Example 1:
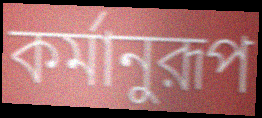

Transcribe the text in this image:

কর্মানুরূপ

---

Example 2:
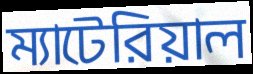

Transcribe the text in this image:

ম্যাটেরিয়াল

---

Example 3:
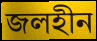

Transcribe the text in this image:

জলহীন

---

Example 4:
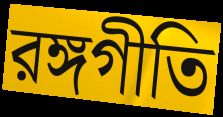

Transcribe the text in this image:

রঙ্গগীতি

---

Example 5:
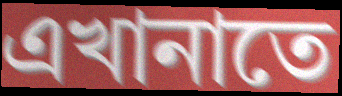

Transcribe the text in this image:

এখানাতে